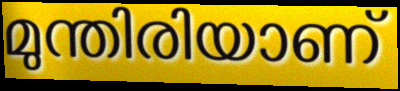
മുന്തിരിയാണ്